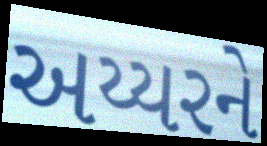
અય્યરને